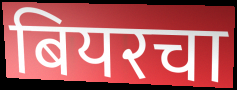
बियरचा